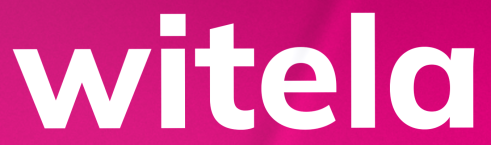
witela